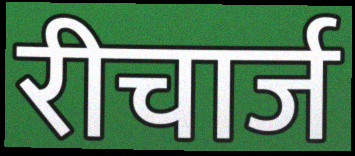
रीचार्ज